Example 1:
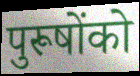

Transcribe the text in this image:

पुरूषोंको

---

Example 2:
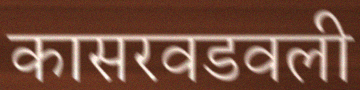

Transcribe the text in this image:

कासरवडवली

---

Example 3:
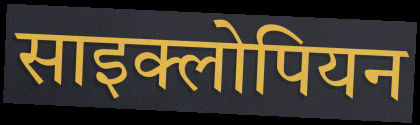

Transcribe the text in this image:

साइक्लोपियन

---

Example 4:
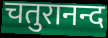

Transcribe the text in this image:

चतुरानन्द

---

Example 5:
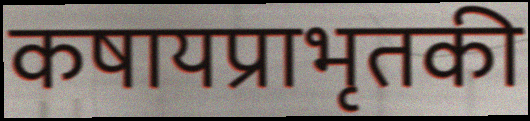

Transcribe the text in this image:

कषायप्राभृतकी